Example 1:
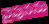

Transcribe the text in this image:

వైపునను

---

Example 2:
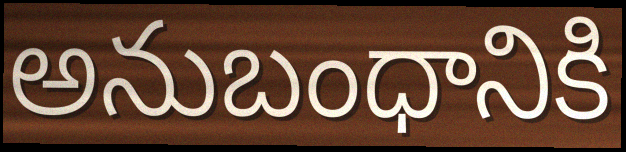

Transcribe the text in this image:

అనుబంధానికి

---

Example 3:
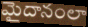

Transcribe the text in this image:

మైదానంలా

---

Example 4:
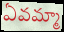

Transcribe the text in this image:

ఏవమ్మా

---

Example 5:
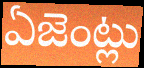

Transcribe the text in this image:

ఏజెంట్లు